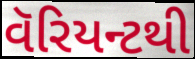
વૅરિયન્ટથી